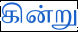
கின்று